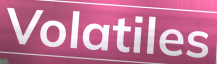
Volatiles